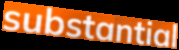
substantial